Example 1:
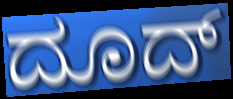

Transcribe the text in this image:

ದೂದ್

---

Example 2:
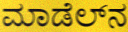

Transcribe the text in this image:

ಮಾಡೆಲ್‌ನ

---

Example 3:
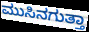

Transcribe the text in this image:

ಮುಸಿನಗುತ್ತಾ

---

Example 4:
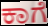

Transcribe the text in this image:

ಕಾಗೆ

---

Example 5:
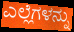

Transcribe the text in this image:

ಎಲ್ಲೆಗಳನ್ನು